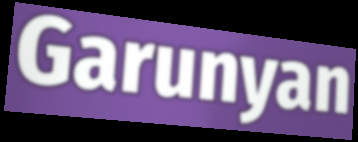
Garunyan